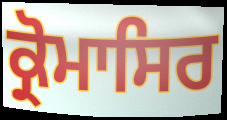
ਕ੍ਰੋਮਾਸਿਰ